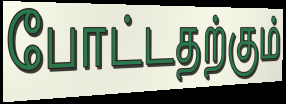
போட்டதற்கும்